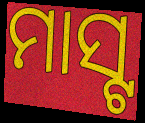
ମାସ୍ଟ